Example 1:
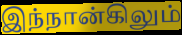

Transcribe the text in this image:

இந்நான்கிலும்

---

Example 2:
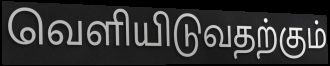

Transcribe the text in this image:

வெளியிடுவதற்கும்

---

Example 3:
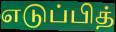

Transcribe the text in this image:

எடுப்பித்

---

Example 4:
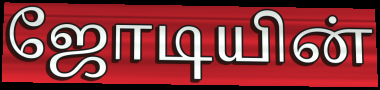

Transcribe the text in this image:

ஜோடியின்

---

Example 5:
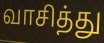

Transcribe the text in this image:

வாசித்து